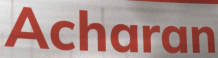
Acharan